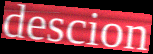
descion